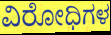
ವಿರೋಧಿಗಳ